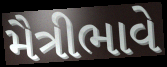
મૈત્રીભાવે